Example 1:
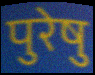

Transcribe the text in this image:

पुरेषु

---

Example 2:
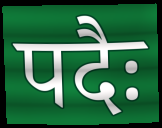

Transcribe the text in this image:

पदैः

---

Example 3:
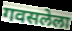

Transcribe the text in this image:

गवसलेला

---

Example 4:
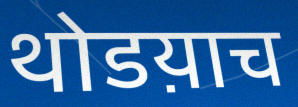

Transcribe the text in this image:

थोडय़ाच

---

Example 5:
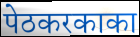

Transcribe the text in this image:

पेठकरकाका